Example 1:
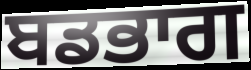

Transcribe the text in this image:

ਬਡਭਾਗ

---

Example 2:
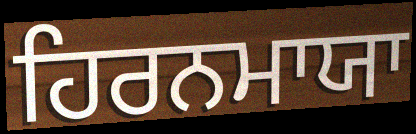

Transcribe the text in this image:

ਹਿਰਨਮਾਯਾ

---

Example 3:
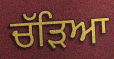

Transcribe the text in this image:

ਚੱੜਿਆ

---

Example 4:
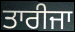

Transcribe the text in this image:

ਤਾਰੀਜਾ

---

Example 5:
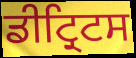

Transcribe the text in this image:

ਡੀਟ੍ਰਿਟਸ